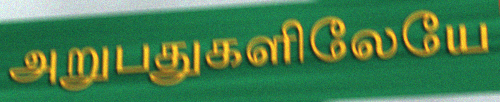
அறுபதுகளிலேயே